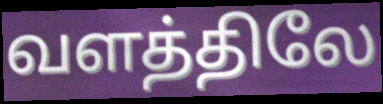
வளத்திலே